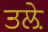
ਤਲ਼ੇ